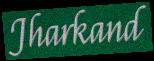
Jharkand